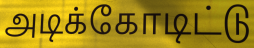
அடிக்கோடிட்டு